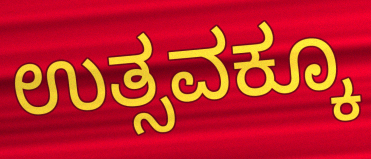
ಉತ್ಸವಕ್ಕೂ